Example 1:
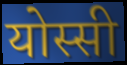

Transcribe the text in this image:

योस्सी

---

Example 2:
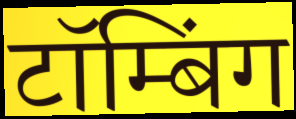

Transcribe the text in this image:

टॉम्बिंग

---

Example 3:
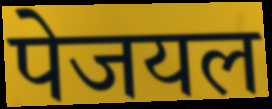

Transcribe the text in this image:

पेजयल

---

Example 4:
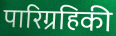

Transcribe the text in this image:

पारिग्रहिकी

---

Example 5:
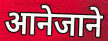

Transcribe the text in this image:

आनेजाने